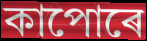
কাপোৰে